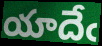
యాదేఁ